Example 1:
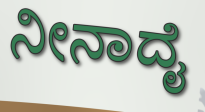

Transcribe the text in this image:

ನೀನಾದೈ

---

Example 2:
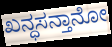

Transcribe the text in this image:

ಖನ್ಧಸನ್ತಾನೋ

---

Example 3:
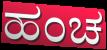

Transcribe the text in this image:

ಹಂಚ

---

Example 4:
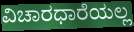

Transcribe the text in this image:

ವಿಚಾರಧಾರೆಯಲ್ಲ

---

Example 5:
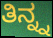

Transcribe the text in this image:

ತಿನ್ನ್ನ